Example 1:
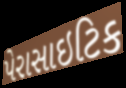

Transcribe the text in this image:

પેરાસાઇટિક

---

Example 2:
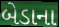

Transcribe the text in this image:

બેડાના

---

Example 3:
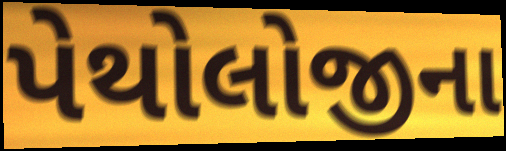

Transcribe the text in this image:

પેથોલોજીના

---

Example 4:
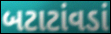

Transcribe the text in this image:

બટાટાંવડાં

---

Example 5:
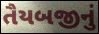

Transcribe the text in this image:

તૈયબજીનું